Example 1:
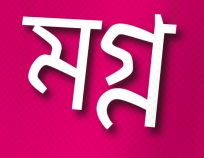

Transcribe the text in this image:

মগ্ন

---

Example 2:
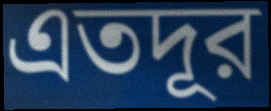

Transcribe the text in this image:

এতদূর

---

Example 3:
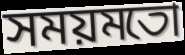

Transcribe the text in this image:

সময়মতো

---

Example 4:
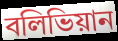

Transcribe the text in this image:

বলিভিয়ান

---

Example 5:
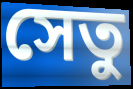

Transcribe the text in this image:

সেতু